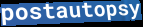
postautopsy